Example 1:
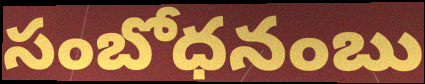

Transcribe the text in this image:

సంబోధనంబు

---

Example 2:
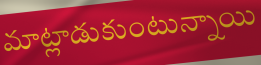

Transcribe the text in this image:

మాట్లాడుకుంటున్నాయి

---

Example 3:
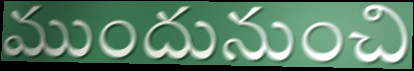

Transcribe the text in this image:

ముందునుంచి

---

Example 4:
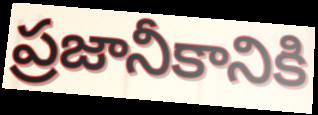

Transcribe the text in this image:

ప్రజానీకానికి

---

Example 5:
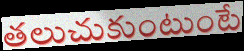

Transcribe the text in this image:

తలుచుకుంటుంటే